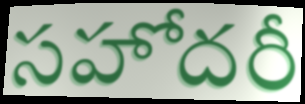
సహోదరీ